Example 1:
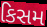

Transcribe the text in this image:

કિસમ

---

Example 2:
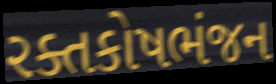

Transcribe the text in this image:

રક્તકોષભંજન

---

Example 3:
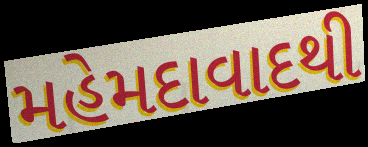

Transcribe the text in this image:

મહેમદાવાદથી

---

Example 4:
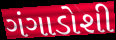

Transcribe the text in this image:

ગંગાડોશી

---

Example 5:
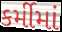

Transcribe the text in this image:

કર્મીમાં